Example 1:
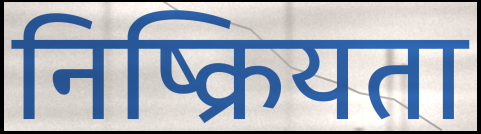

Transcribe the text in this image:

निष्क्रियता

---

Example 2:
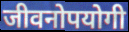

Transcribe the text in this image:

जीवनोपयोगी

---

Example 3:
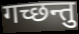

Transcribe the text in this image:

गच्छन्तु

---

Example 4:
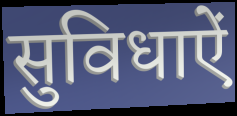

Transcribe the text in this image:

सुविधाऐं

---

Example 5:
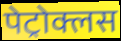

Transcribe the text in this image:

पेट्रोक्लस